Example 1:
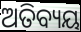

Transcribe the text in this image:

ଅତିବ୍ୟୟ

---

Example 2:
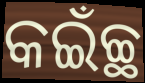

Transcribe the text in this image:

କଇଁଚ୍ଛ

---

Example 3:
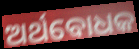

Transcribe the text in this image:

ଅର୍ଥବୋଧକ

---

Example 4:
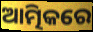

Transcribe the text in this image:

ଆତ୍ମିକରେ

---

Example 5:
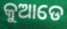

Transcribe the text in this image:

କୁଆଡେ